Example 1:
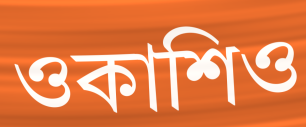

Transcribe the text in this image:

ওকাশিও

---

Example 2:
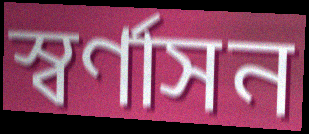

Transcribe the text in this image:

স্বর্ণাসন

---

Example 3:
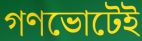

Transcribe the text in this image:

গণভোটেই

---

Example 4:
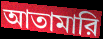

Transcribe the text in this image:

আতামারি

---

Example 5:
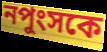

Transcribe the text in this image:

নপুংসকে